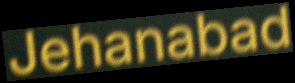
Jehanabad